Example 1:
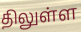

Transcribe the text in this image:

திலுள்ள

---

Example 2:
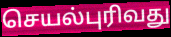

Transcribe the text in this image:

செயல்புரிவது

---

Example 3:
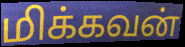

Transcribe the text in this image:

மிக்கவன்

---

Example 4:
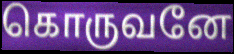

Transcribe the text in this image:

கொருவனே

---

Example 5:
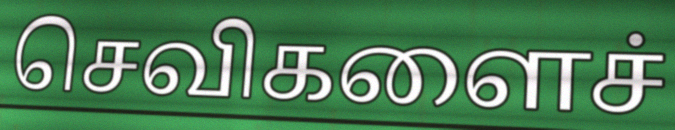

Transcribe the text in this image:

செவிகளைச்